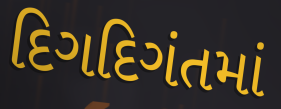
દિગદિગંતમાં